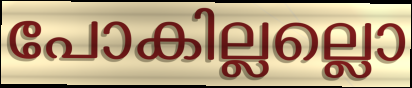
പോകില്ലല്ലൊ